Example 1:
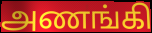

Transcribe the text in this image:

அணங்கி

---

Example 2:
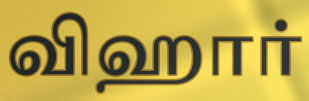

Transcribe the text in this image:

விஹார்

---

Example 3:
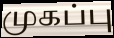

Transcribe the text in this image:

முகப்பு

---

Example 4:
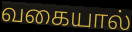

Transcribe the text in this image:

வகையால்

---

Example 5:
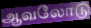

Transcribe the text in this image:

ஆவலோடு